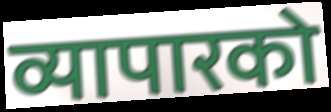
व्यापारको